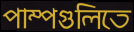
পাম্পগুলিতে